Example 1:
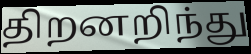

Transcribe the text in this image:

திறனறிந்து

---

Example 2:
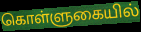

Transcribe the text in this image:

கொள்ளுகையில்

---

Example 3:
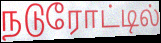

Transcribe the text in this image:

நடுரோட்டில்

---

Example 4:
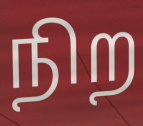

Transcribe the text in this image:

நிற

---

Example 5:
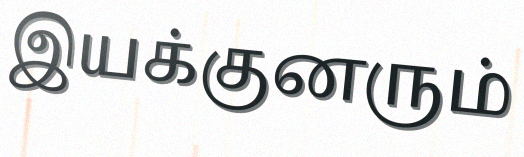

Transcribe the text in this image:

இயக்குனரும்